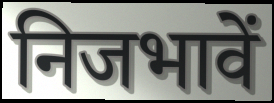
निजभावें